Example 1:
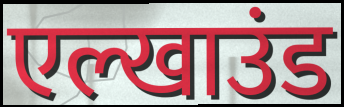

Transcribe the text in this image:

एल्खाउंड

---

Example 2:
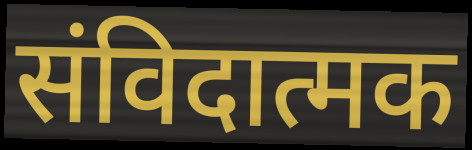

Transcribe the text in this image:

संविदात्मक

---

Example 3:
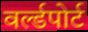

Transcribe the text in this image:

वर्ल्डपोर्ट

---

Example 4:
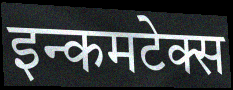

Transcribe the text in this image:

इन्कमटेक्स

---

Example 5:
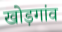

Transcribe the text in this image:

खोड़गांव